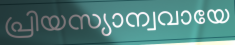
പ്രിയസ്യാന്വവായേ